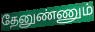
தேனுண்ணும்